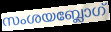
സംശയബ്ലോഗ്